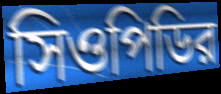
সিওপিডির